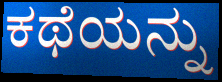
ಕಥೆಯನ್ನು